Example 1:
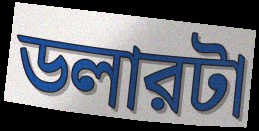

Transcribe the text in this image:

ডলারটা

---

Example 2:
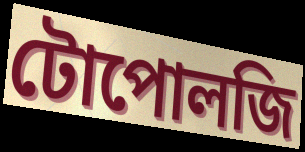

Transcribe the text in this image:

টোপোলজি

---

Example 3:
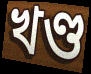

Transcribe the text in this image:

খণ্ড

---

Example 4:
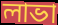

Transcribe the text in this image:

লাভা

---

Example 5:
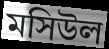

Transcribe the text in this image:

মসিউল